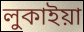
লুকাইয়া